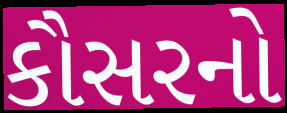
કૌસરનો